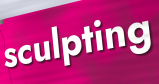
sculpting